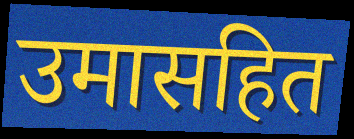
उमासहित